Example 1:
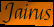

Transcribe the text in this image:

Jairus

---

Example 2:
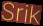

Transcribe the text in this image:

Srik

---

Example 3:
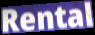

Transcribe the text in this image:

Rental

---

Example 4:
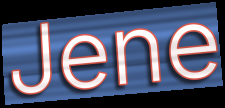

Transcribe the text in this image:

Jene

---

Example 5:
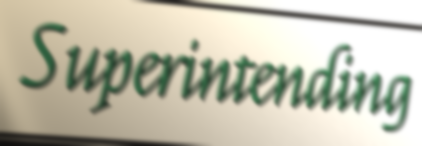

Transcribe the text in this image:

Superintending